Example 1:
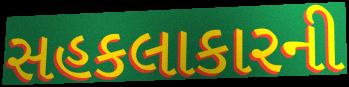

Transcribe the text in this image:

સહકલાકારની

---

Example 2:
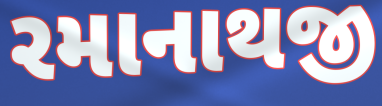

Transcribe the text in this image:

રમાનાથજી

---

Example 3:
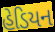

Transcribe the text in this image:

હેડિયન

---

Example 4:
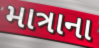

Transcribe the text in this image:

માત્રાના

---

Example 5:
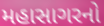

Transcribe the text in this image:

મહાસાગરનો